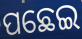
ପଛେଇ